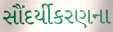
સૌંદર્યીકરણના